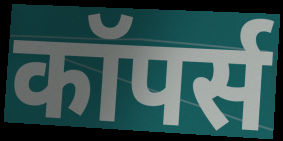
कॉपर्स